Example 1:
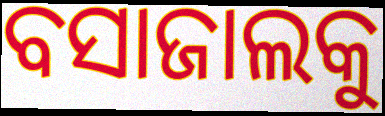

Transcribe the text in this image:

ବସାଜାଲକୁ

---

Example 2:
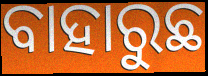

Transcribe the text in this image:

ବାହାରୁଛ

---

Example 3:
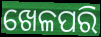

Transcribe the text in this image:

ଖେଳପରି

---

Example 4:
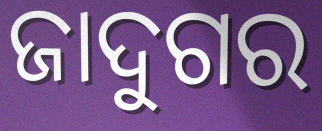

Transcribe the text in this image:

ଜାଦୁଗର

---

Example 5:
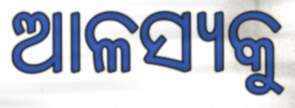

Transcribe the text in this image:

ଆଳସ୍ୟକୁ